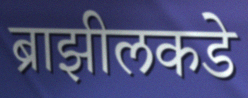
ब्राझीलकडे